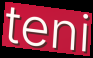
teni